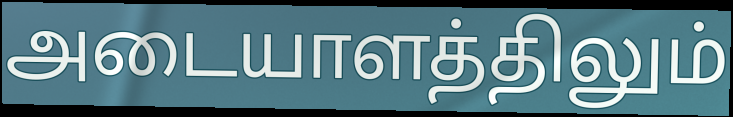
அடையாளத்திலும்